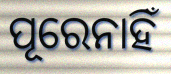
ପୂରେନାହିଁ